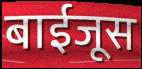
बाईजूस